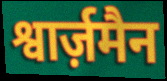
श्वार्ज़मैन